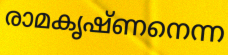
രാമകൃഷ്ണനെന്ന